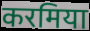
करमिया